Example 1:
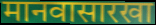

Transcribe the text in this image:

मानवासारखा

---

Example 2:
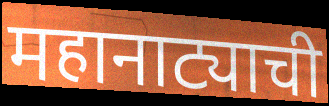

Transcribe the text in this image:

महानाट्याची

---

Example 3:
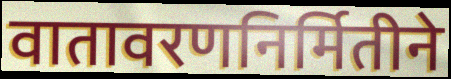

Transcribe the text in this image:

वातावरणनिर्मितीने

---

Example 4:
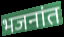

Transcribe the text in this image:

भजनांत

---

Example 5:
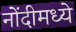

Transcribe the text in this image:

नोंदीमध्ये